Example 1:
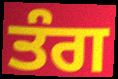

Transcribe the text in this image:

ਤੰਗ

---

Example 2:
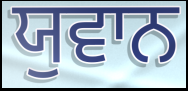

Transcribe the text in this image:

ਯੁਵਾਨ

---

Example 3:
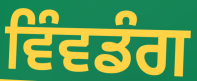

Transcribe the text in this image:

ਵਿੰਵਡੰਗ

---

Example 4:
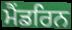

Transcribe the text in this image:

ਮੈਂਡਰਿਨ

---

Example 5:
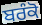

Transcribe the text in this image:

ਬਰੰਕੋ